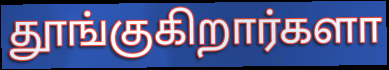
தூங்குகிறார்களா